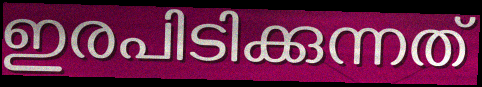
ഇരപിടിക്കുന്നത്